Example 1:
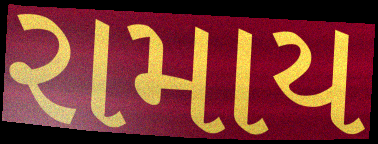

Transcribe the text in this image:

રામાય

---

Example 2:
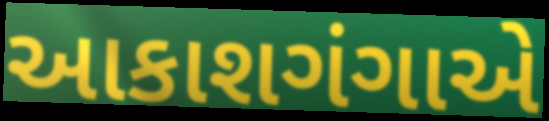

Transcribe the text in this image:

આકાશગંગાએ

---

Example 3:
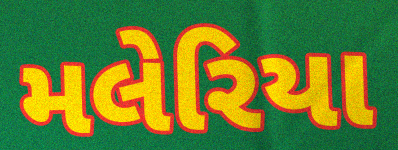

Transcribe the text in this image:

મલેરિયા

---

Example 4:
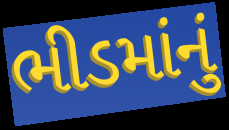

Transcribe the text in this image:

ભીડમાંનું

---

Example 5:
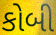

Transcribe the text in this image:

કોબી